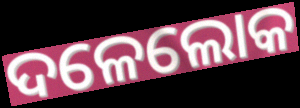
ଦଳେଲୋକ